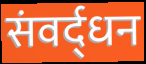
संवर्द्धन